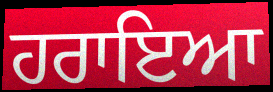
ਹਰਾਇਆ